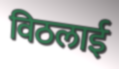
विठलाई